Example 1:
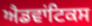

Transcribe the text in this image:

ਐਡਵਾਂਟਿਕਸ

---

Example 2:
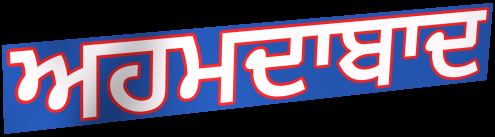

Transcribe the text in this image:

ਅਹਮਦਾਬਾਦ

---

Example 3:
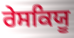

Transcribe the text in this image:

ਰੇਸਕਿਯੂ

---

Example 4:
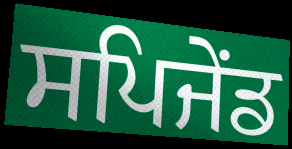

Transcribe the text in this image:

ਸਪਿਜੇਂਡ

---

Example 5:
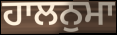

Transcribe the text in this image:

ਹਾਲਨੁਮਾ